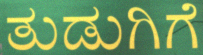
ತುಡುಗಿಗೆ